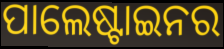
ପାଲେଷ୍ଟାଇନର